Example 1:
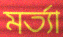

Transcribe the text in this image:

মর্ত্যা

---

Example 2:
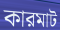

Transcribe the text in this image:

কারমাট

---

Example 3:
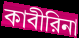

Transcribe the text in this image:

কাবীরিনা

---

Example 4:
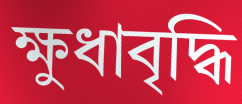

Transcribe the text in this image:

ক্ষুধাবৃদ্ধি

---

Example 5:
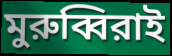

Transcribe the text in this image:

মুরুব্বিরাই